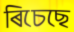
ৰিচেছে